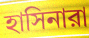
হাসিনারা